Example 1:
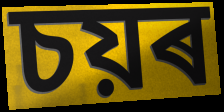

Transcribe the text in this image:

চয়ৰ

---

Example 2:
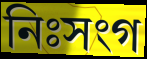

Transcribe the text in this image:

নিঃসংগ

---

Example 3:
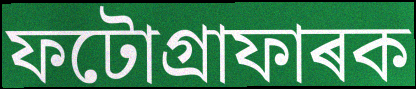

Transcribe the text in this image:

ফটোগ্ৰাফাৰক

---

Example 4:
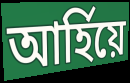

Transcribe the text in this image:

আৰ্হিয়ে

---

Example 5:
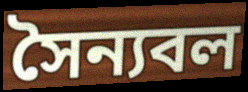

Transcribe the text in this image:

সৈন্যবল